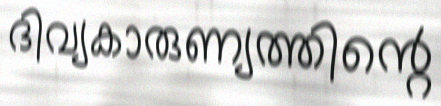
ദിവ്യകാരുണ്യത്തിന്റെ